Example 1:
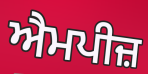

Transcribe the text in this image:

ਐਮਪੀਜ਼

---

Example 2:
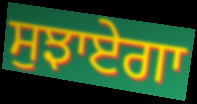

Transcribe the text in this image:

ਸੁਝਾਏਗਾ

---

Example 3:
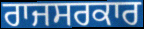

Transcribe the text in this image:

ਰਾਜਸਰਕਾਰ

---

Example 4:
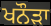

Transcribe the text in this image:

ਖਨੌੜਾ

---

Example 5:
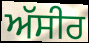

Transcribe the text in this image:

ਅੱਸੀਰ